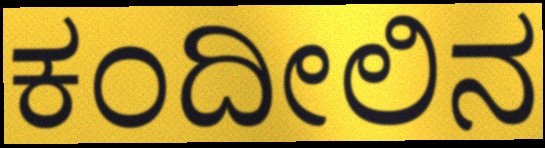
ಕಂದೀಲಿನ